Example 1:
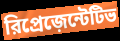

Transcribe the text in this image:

রিপ্রেজ়েন্টেটিভ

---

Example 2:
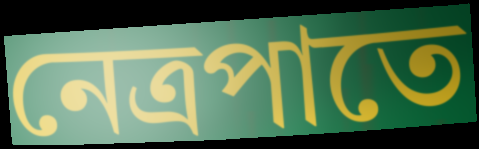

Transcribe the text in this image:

নেত্রপাতে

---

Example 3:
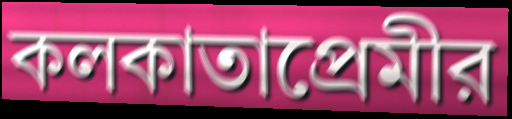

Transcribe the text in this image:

কলকাতাপ্রেমীর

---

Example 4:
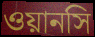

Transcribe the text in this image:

ওয়ানসি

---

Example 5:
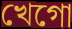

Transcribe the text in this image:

খেগো